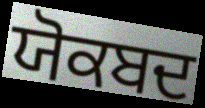
ਯੋਕਬਦ